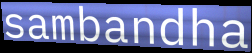
sambandha